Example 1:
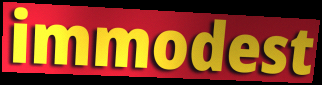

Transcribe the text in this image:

immodest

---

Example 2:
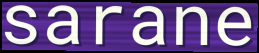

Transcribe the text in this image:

sarane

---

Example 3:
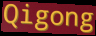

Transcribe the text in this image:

Qigong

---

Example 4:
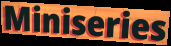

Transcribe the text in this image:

Miniseries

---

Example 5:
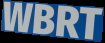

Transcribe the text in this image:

WBRT